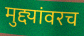
मुद्द्यांवरच